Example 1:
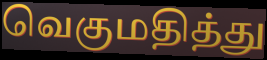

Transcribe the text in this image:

வெகுமதித்து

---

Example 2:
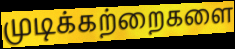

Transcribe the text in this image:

முடிக்கற்றைகளை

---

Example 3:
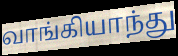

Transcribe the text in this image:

வாங்கியாந்து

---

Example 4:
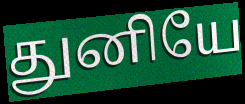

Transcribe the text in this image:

துனியே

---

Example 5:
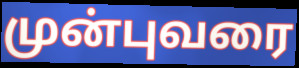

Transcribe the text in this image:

முன்புவரை